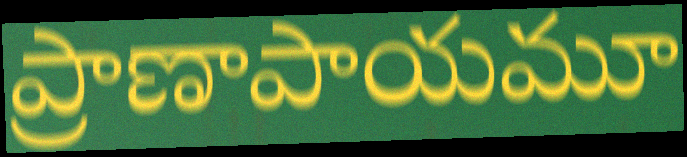
ప్రాణాపాయమూ